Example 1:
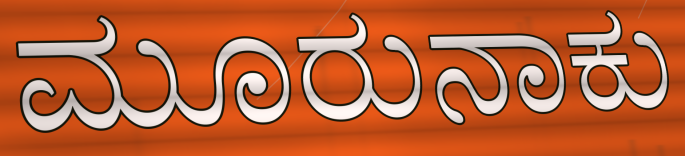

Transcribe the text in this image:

ಮೂರುನಾಕು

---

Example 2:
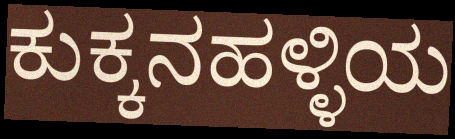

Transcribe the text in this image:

ಕುಕ್ಕನಹಳ್ಳಿಯ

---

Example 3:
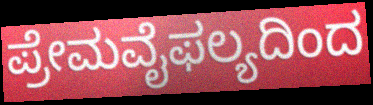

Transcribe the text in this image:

ಪ್ರೇಮವೈಫಲ್ಯದಿಂದ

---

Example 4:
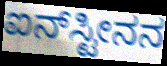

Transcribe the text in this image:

ಐನ್‌ಸ್ಟೀನನ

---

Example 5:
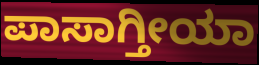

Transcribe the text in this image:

ಪಾಸಾಗ್ತೀಯಾ